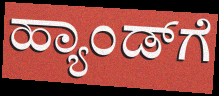
ಹ್ಯಾಂಡ್‌ಗೆ